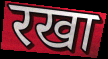
रखा